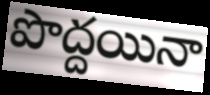
పొద్దయినా